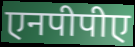
एनपीपीए